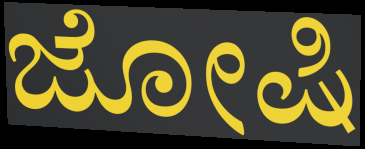
ಜೋಷಿ